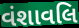
વંશાવલિ